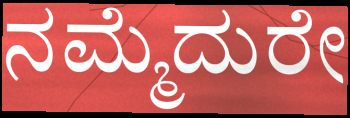
ನಮ್ಮೆದುರೇ